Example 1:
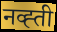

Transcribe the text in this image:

नव्ह्ती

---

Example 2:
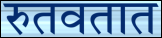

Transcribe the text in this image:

रुतवतात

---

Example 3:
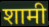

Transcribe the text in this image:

शामी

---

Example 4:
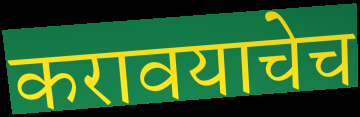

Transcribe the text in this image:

करावयाचेच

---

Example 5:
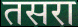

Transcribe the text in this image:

तसरा